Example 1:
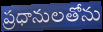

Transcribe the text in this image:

ప్రధానులతోను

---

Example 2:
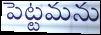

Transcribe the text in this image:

పెట్టమను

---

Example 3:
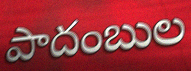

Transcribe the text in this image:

పాదంబుల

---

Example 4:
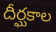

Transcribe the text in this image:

దీర్ఘకాల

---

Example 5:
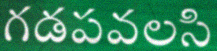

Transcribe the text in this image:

గడపవలసి